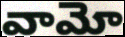
వామో